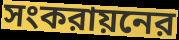
সংকরায়নের